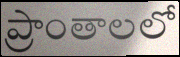
ప్రాంతాలలో